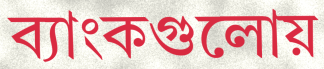
ব্যাংকগুলোয়